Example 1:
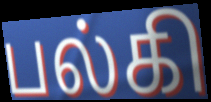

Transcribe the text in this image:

பல்கி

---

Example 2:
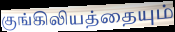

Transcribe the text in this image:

குங்கிலியத்தையும்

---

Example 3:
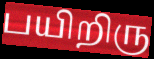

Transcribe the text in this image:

பயிறிரு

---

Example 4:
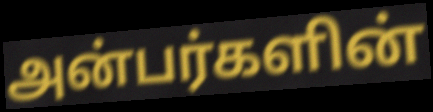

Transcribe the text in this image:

அன்பர்களின்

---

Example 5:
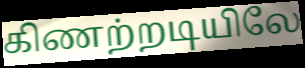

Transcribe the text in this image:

கிணற்றடியிலே